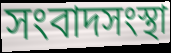
সংবাদসংস্থা